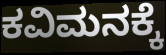
ಕವಿಮನಕ್ಕೆ